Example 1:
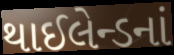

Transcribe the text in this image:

થાઈલેન્ડનાં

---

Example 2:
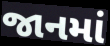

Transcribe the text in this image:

જાનમાં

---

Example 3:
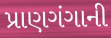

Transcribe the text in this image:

પ્રાણગંગાની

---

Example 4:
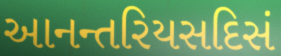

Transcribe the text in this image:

આનન્તરિયસદિસં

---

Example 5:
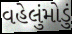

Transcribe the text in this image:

વહેલુંમોડું